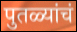
पुतळ्यांचं